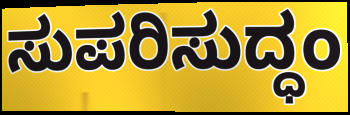
ಸುಪರಿಸುದ್ಧಂ